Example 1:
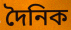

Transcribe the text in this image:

দৈনিক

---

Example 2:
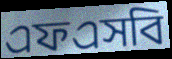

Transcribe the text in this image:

এফএসবি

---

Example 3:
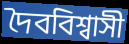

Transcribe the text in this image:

দৈববিশ্বাসী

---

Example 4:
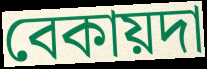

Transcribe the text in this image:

বেকায়দা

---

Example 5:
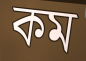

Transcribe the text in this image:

কম